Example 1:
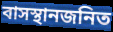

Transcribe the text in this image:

বাসস্থানজনিত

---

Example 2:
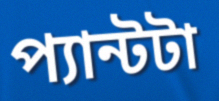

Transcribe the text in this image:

প্যান্টটা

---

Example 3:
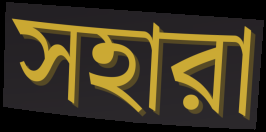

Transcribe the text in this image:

সহারা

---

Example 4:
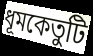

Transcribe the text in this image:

ধূমকেতুটি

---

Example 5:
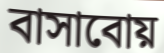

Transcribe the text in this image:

বাসাবোয়